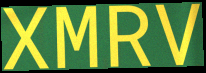
XMRV